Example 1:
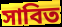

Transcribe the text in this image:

সাবিত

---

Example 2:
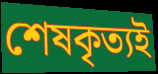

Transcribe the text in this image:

শেষকৃত্যই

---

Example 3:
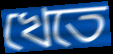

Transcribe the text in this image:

খেতে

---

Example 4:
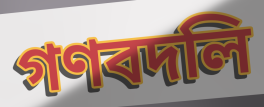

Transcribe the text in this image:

গণবদলি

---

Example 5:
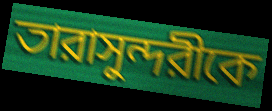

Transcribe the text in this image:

তারাসুন্দরীকে